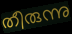
തീരുന്നു